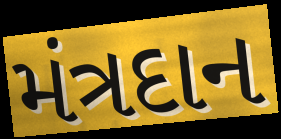
મંત્રદાન